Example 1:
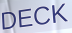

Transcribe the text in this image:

DECK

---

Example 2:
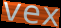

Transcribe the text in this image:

vex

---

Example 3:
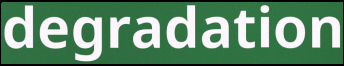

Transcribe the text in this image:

degradation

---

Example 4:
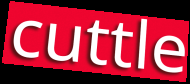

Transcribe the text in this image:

cuttle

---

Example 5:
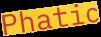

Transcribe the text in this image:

Phatic